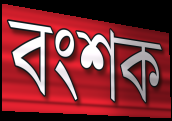
বংশক